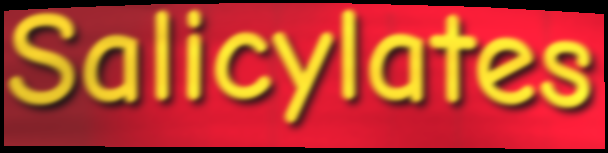
Salicylates